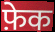
फ़ेक